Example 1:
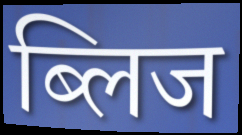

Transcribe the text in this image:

ब्लिज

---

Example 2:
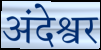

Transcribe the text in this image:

अंदेश्वर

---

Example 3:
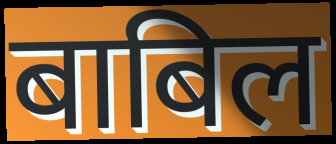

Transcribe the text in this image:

बाबिल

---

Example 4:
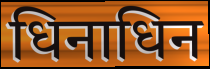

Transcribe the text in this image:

धिनाधिन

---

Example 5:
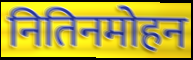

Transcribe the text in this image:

नितिनमोहन